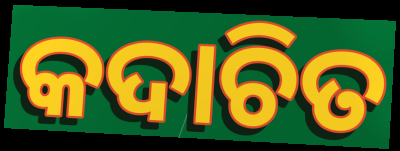
କଦାଚିତ